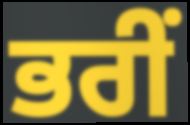
ਭਰੀਂ